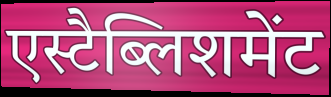
एस्टैब्लिशमेंट